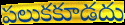
పలుకకూడదు